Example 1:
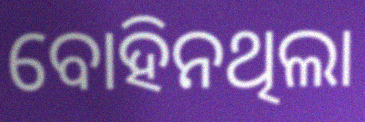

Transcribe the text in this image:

ବୋହିନଥିଲା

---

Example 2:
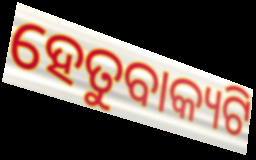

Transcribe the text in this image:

ହେତୁବାକ୍ୟଟି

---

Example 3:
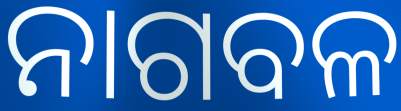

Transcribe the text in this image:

ନାଗବଳ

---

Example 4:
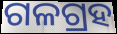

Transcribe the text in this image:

ଗଳଗ୍ରହ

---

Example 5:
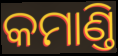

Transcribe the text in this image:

କମାଣ୍ତି